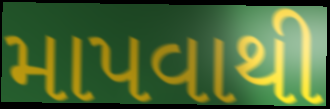
માપવાથી